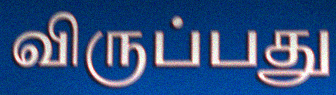
விருப்பது